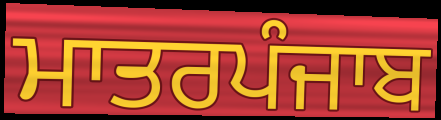
ਮਾਤਰਪੰਜਾਬ